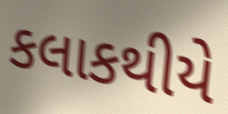
કલાકથીયે